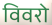
विवरो